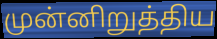
முன்னிறுத்திய